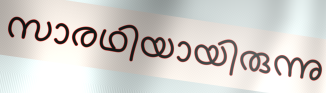
സാരഥിയായിരുന്നു